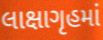
લાક્ષાગૃહમાં